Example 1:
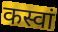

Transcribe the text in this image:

कस्वां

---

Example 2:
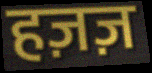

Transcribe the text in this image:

हज़ज़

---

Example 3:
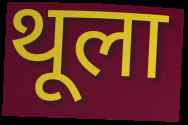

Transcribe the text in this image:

थूला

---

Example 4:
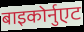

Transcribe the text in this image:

बाइकोर्नुएट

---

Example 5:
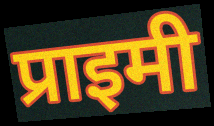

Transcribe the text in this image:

प्राइमी